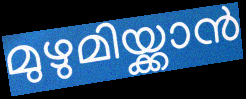
മുഴുമിയ്ക്കാൻ